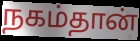
நகம்தான்